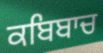
ਕਬਿਬਾਚ